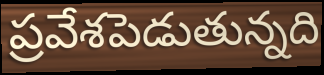
ప్రవేశపెడుతున్నది